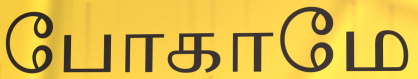
போகாமே